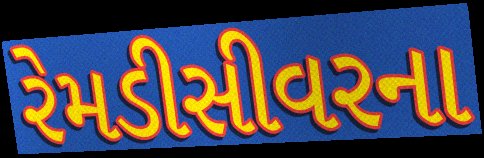
રેમડીસીવરના